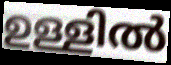
ഉള്ളിൽ